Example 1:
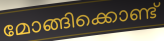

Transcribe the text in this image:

മോങ്ങിക്കൊണ്ട്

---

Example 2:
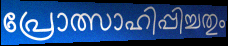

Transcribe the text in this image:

പ്രോത്സാഹിപ്പിച്ചതും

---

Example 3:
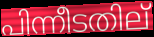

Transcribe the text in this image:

പിന്നീടതില്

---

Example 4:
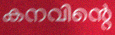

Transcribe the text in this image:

കനവിന്റെ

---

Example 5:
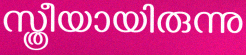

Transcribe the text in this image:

സ്ത്രീയായിരുന്നു